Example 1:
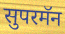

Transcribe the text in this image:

सुपरमॅन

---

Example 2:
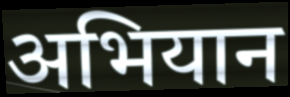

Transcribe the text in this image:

अभियान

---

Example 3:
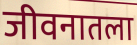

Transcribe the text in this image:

जीवनातला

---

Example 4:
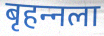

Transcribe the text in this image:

बृहन्नला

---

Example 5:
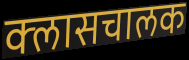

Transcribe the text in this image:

क्‍लासचालक